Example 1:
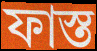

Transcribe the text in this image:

ফাস্ত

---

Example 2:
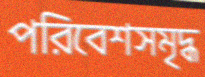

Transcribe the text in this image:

পরিবেশসমৃদ্ধ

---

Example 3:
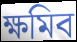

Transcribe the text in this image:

ক্ষমিব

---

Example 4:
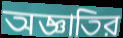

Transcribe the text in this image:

অজ্ঞাতির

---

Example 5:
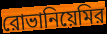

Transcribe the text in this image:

রোভানিয়েমির